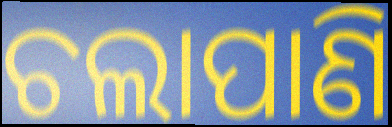
ଚଲାପାଣି